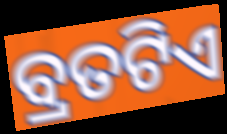
ବ୍ରତଟିଏ